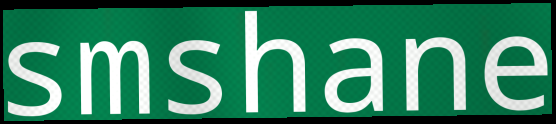
smshane